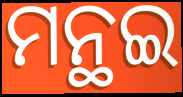
ମନ୍ଥଇ